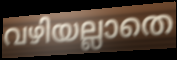
വഴിയല്ലാതെ